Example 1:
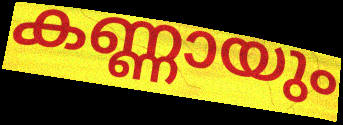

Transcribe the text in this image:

കണ്ണായും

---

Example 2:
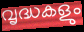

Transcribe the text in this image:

വൃദ്ധകളും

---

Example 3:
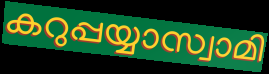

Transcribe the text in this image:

കറുപ്പയ്യാസ്വാമി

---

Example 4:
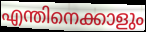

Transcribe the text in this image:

എന്തിനെക്കാളും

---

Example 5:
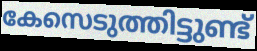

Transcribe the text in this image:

കേസെടുത്തിട്ടുണ്ട്